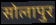
सोलापुर